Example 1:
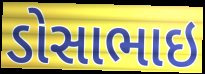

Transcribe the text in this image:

ડોસાભાઇ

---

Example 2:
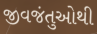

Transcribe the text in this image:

જીવજંતુઓથી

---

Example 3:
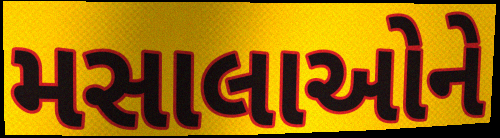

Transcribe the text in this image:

મસાલાઓને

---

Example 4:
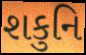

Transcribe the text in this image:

શકુનિ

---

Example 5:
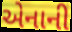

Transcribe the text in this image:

એનાની